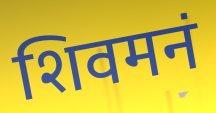
शिवमनं